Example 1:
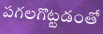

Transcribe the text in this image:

పగలగొట్టడంతో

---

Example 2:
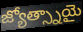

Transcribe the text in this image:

జ్యోత్స్నాయై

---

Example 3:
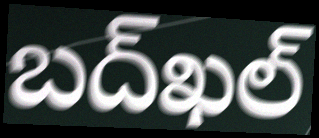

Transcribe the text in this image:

బద్‌ఖల్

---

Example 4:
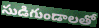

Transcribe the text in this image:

సుడిగుండాలతో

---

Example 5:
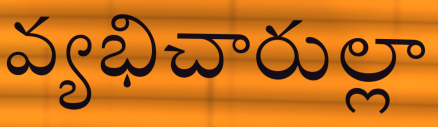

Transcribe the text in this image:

వ్యభిచారుల్లా